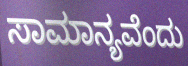
ಸಾಮಾನ್ಯವೆಂದು